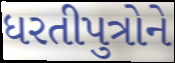
ધરતીપુત્રોને